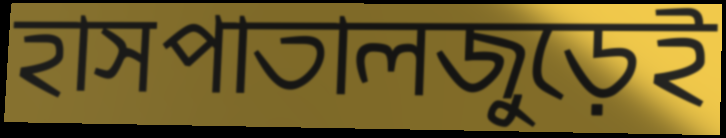
হাসপাতালজুড়েই